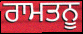
ਰਾਮਤਨੂ